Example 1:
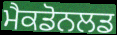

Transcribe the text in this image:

ਮੈਕਡੋਨਲਡ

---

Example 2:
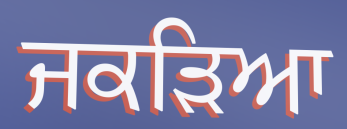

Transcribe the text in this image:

ਜਕੜਿਆ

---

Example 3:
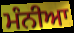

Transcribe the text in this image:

ਮੰਨੀਆ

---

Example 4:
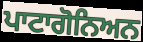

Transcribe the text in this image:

ਪਾਟਾਗੋਨਿਅਨ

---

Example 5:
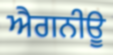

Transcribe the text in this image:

ਐਗਨੀਊ